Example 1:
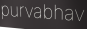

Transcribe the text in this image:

purvabhav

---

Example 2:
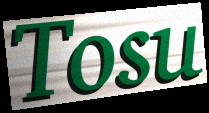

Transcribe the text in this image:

Tosu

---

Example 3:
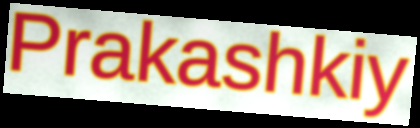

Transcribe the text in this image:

Prakashkiy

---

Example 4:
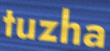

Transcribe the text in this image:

tuzha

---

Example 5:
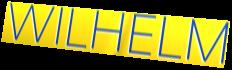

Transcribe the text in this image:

WILHELM